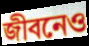
জীবনেও